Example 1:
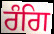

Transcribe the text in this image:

ਰੰਗਿ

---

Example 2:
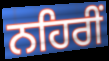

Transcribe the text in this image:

ਨਹਿਰੀਂ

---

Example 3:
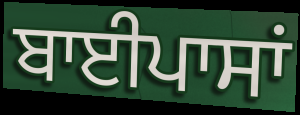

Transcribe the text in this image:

ਬਾਈਪਾਸਾਂ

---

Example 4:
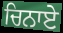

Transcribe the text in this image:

ਚਿਨਾਏ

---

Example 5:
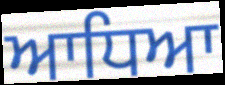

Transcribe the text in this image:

ਆਧਿਆ